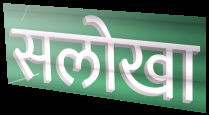
सलोखा